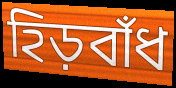
হিড়বাঁধ